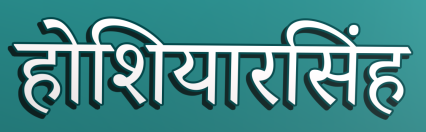
होशियारसिंह